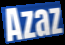
Azaz